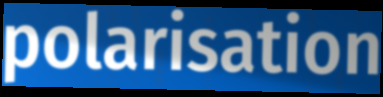
polarisation